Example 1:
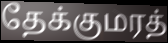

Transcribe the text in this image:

தேக்குமரத்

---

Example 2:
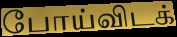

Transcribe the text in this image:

போய்விடக்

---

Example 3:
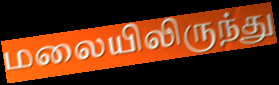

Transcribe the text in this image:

மலையிலிருந்து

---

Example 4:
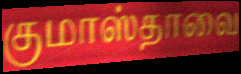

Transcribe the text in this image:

குமாஸ்தாவை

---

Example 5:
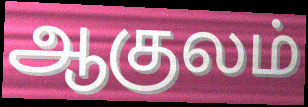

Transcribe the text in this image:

ஆகுலம்